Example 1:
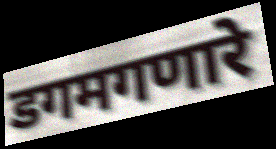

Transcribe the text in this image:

डगमगणारे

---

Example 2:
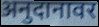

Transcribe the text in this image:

अनुदानावर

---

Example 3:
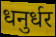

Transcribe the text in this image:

धनुर्धर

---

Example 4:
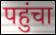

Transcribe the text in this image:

पहुंचा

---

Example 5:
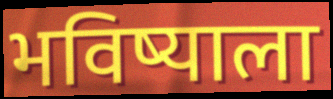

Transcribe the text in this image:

भविष्याला